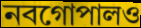
নবগোপালও